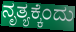
ನೃತ್ಯಕ್ಕೆಂದು